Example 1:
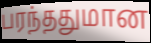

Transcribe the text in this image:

பரந்ததுமான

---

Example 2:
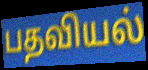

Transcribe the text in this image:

பதவியல்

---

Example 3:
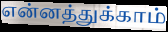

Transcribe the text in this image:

என்னத்துக்காம்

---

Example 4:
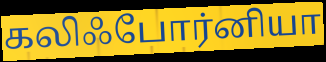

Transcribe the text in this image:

கலிஃபோர்னியா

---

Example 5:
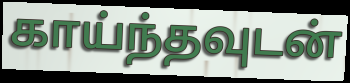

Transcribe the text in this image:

காய்ந்தவுடன்